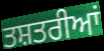
ਤਸ਼ਤਰੀਆਂ